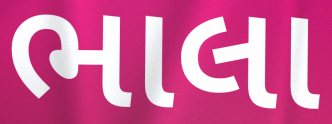
ભાલા